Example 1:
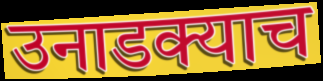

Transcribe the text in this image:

उनाडक्याच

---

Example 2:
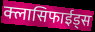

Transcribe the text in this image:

क्लासिफाईड्स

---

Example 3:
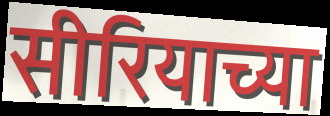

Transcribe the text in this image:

सीरियाच्या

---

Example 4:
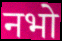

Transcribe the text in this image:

नभो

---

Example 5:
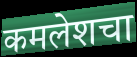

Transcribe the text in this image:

कमलेशचा